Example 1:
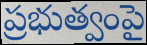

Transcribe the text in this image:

ప్రభుత్వంపై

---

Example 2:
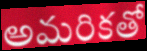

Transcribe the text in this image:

అమరికతో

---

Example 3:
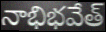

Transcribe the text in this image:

నాభిభవేత్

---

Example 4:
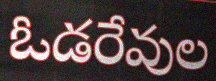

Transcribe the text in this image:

ఓడరేవుల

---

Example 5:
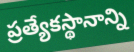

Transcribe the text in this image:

ప్రత్యేకస్థానాన్ని